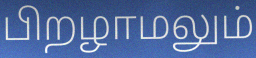
பிறழாமலும்